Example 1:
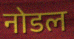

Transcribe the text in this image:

नोडल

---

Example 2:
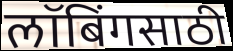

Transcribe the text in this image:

लॉबिंगसाठी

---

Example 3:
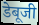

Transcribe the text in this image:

डेबूजी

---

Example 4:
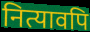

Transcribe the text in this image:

नित्यावपि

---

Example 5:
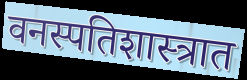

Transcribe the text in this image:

वनस्पतिशास्त्रात